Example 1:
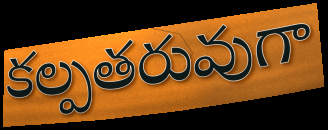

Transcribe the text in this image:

కల్పతరువుగా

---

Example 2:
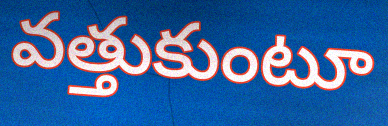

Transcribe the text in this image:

వత్తుకుంటూ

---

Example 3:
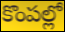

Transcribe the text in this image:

కొంపల్లో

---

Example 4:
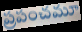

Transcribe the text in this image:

ప్రపంచమూ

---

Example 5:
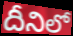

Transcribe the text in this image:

దీనిలో